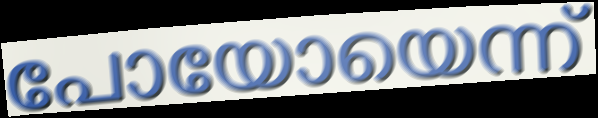
പോയോയെന്ന്